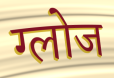
ग्लोज